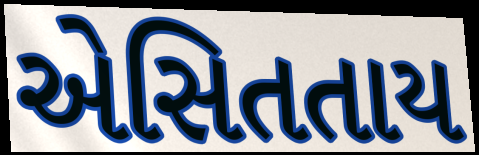
એસિતતાય